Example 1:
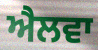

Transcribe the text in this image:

ਐਲਵਾ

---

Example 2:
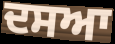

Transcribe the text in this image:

ਦਸਆ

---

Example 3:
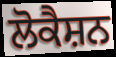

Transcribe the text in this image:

ਲੋਕੈਸ਼ਨ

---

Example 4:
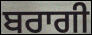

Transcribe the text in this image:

ਬਰਾਗੀ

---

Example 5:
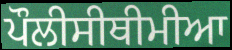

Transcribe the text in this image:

ਪੌਲੀਸੀਥੀਮੀਆ